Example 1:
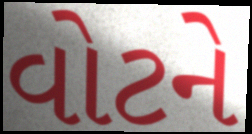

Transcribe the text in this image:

વોટને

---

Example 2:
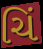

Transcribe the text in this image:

ચિં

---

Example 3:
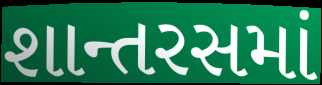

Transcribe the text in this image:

શાન્તરસમાં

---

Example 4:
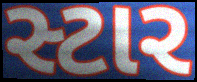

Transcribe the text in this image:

સ્ટાર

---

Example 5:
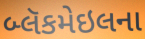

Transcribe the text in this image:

બ્લૅકમેઇલના